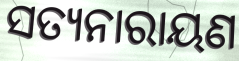
ସତ୍ଯନାରାୟଣ